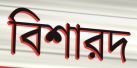
বিশারদ